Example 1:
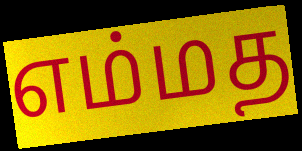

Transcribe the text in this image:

எம்மத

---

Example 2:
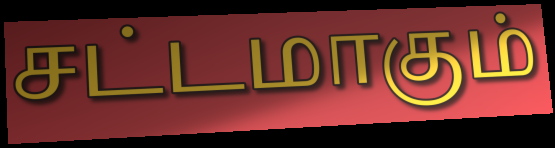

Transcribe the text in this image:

சட்டமாகும்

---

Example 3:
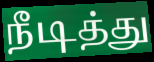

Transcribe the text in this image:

நீடித்து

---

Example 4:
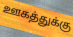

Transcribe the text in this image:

ஊகத்துக்கு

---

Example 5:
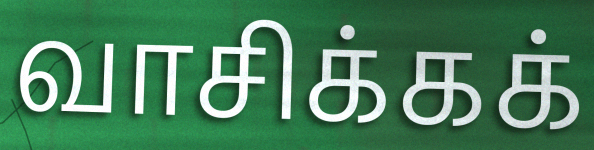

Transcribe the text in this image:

வாசிக்கக்